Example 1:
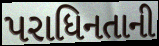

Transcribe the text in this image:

પરાધિનતાની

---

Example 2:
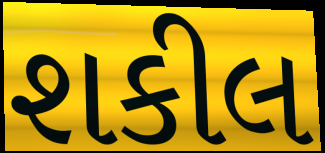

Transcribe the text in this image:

શકીલ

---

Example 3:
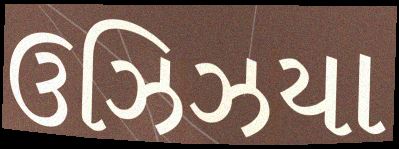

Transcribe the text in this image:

ઉઝિઝયા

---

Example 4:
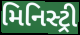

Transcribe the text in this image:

મિનિસ્ટ્રી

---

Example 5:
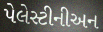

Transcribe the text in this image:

પેલેસ્ટીનીઅન